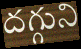
దగ్గుని